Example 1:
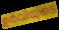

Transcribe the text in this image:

ഉർവിയുടെ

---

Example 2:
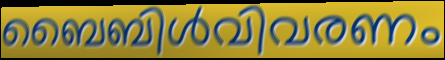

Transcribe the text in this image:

ബൈബിൾവിവരണം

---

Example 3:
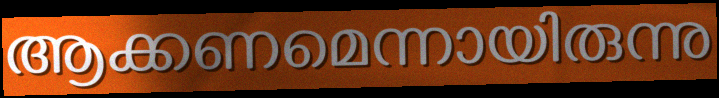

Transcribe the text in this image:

ആക്കണമെന്നായിരുന്നു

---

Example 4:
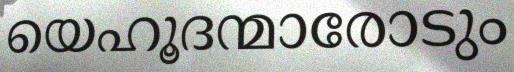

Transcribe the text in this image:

യെഹൂദന്മാരോടും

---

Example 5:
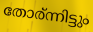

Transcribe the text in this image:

തോര്ന്നിട്ടും